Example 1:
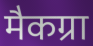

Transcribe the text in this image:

मैकग्रा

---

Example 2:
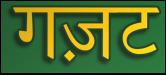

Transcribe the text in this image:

गज़ट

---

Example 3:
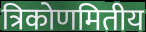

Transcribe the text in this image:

त्रिकोणमितीय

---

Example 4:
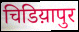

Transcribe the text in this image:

चिडिय़ापुर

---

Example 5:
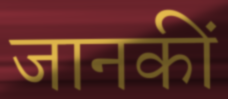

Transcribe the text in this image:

जानकीं